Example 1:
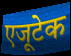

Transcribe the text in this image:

एजूटेक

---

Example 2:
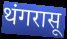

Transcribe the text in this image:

थंगरासू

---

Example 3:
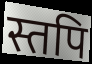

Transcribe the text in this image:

स्‍तपि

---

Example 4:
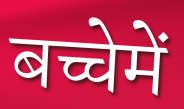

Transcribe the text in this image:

बच्चेमें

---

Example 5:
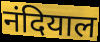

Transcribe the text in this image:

नंदियाल